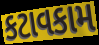
કટાવકામ